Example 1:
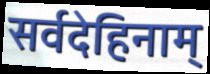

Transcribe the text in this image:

सर्वदेहिनाम्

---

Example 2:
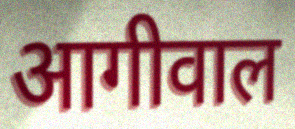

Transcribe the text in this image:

आगीवाल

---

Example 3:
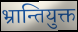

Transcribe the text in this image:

भ्रान्तियुक्त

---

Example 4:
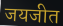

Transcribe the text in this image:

जयजीत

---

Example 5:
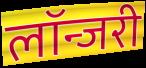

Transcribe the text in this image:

लॉन्जरी